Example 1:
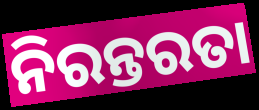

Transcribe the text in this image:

ନିରନ୍ତରତା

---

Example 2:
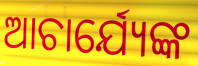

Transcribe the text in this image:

ଆଚାର୍ଯ୍ୟେଙ୍କ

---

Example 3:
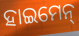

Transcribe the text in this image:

ହାଇମେନ୍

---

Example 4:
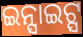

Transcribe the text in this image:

ଇନ୍ସାଇଟ୍ସ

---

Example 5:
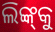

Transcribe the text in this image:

ଲିଙ୍କ୍‌କୁ